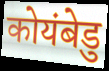
कोयंबेडु